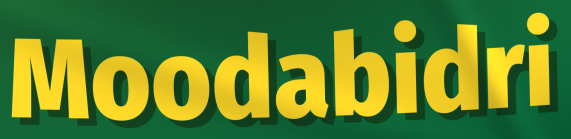
Moodabidri